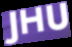
JHU